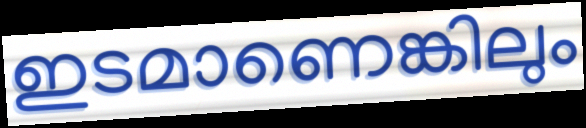
ഇടമാണെങ്കിലും